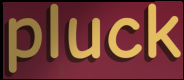
pluck